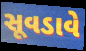
સૂવડાવે